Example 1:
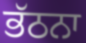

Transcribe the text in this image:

ਭੱਠਨਾ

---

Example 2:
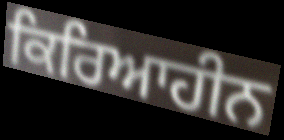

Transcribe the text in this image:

ਕਿਰਿਆਹੀਨ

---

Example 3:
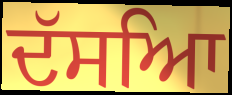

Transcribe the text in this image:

ਦੱਸਆਿ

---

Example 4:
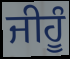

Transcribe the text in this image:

ਜੀਹੂੰ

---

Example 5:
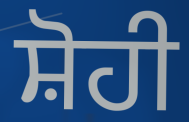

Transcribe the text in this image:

ਸ਼ੋਹੀ